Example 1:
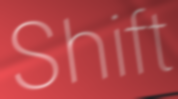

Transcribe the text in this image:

Shift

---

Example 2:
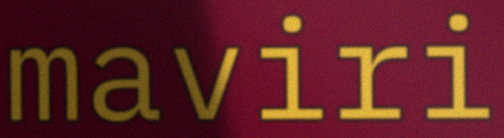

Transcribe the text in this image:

maviri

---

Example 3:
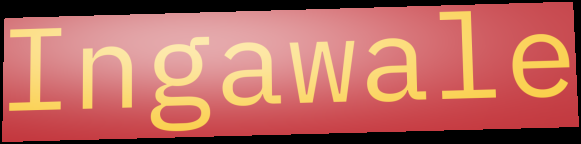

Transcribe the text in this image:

Ingawale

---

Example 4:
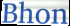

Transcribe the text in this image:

Bhon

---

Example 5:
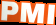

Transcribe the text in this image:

PMI